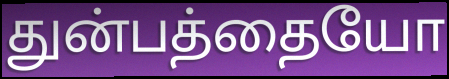
துன்பத்தையோ